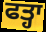
ਫਤ੍ਹਾ